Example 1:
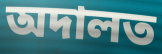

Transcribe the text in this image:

অদালত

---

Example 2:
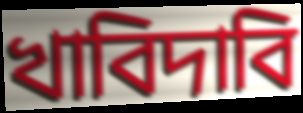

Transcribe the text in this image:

খাবিদাবি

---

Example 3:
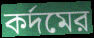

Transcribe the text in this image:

কর্দমের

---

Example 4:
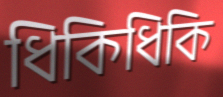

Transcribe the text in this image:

ধিকিধিকি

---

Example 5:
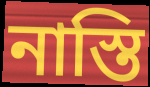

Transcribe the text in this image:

নাস্তি